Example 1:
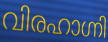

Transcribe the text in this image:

വിരഹാഗ്നി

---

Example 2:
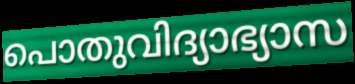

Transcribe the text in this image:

പൊതുവിദ്യാഭ്യാസ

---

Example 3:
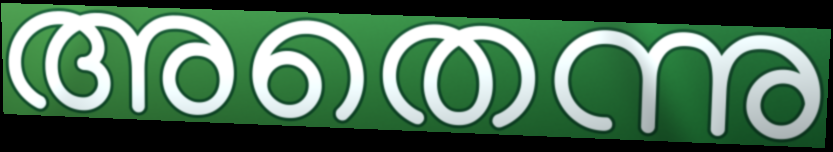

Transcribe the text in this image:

അതെന്നു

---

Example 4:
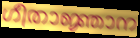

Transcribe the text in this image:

ഗീതാജ്ഞാന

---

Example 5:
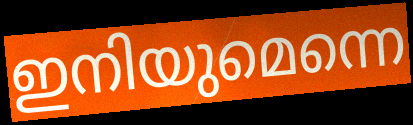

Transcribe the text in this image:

ഇനിയുമെന്നെ